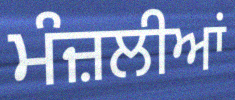
ਮੰਜ਼ਲੀਆਂ